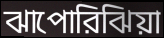
ঝাপোরিঝিয়া